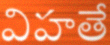
విహతే